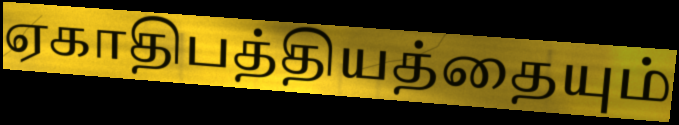
ஏகாதிபத்தியத்தையும்